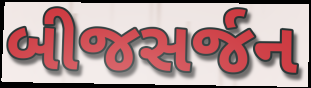
બીજસર્જન